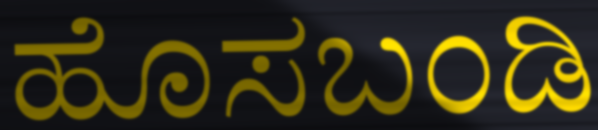
ಹೊಸಬಂಡಿ